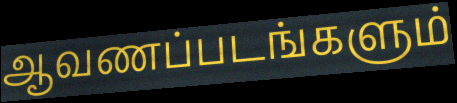
ஆவணப்படங்களும்